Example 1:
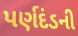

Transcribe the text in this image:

પર્ણદંડની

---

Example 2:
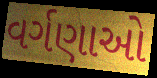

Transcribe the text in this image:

વર્ગણાઓ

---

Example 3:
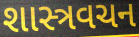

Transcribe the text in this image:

શાસ્ત્રવચન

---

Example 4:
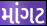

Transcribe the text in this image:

માંગટ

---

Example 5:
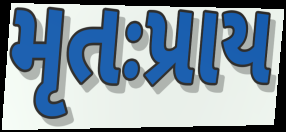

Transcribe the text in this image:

મૃતઃપ્રાય